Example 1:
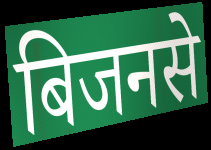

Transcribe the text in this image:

बिजनसे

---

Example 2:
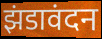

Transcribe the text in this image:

झंडावंदन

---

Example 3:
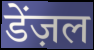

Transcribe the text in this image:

डेंज़ल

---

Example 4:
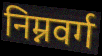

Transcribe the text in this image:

निम्नवर्ग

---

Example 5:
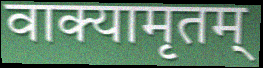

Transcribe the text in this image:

वाक्यामृतम्